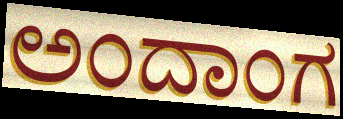
ಅಂದಾಂಗ